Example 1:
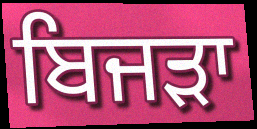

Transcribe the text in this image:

ਬਿਜੜਾ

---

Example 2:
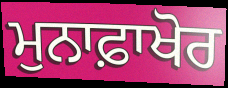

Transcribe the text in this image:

ਮੁਨਾਫ਼ਾਖੋਰ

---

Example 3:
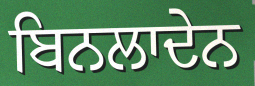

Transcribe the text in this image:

ਬਿਨਲਾਦੇਨ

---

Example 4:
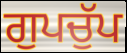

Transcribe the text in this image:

ਗੁਪਚੁੱਪ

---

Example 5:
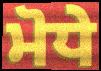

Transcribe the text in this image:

ਮੋਧੇ